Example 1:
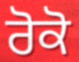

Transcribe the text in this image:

ਰੋਕੋ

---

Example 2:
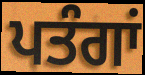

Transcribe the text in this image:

ਪਤੰਗਾਂ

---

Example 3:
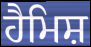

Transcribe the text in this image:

ਹੈਮਿਸ਼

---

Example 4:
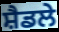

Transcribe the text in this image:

ਸ਼ੈਡਲੇ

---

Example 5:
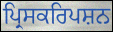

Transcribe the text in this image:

ਪ੍ਰਿਸਕਰਿਪਸ਼ਨ